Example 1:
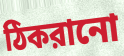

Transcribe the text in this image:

ঠিকরানো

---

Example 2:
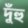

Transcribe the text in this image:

দুঁহু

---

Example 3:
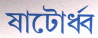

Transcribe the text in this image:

ষাটোর্ধ্ব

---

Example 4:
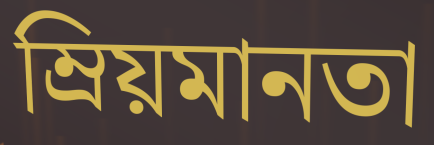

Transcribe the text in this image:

ম্রিয়মানতা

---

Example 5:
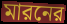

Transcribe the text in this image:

মারনের